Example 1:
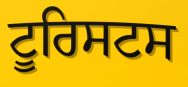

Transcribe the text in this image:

ਟੂਰਿਸਟਸ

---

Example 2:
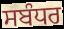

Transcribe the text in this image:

ਸਬੰਧਰ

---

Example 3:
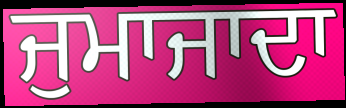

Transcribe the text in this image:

ਜੁਮਾਜਾਦਾ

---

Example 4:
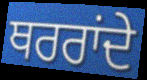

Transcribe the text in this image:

ਥਰਰਾਂਦੇ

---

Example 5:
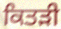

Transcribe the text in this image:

ਕਿਤੜੀ